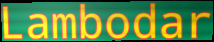
Lambodar